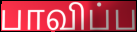
பாவிப்ப